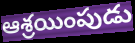
ఆశ్రయింపుడు